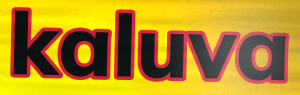
kaluva